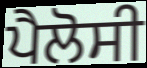
ਪੈਲੋਸੀ